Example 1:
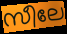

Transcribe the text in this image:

സീലേ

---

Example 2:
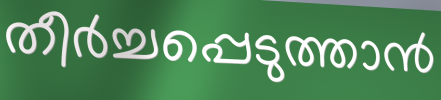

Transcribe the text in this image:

തീർച്ചപ്പെടുത്താൻ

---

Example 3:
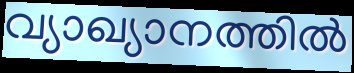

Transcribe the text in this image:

വ്യാഖ്യാനത്തിൽ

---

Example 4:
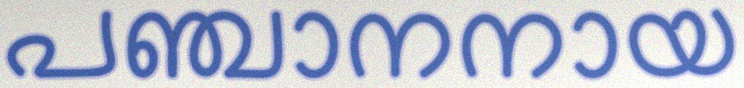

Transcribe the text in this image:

പഞ്ചാനനായ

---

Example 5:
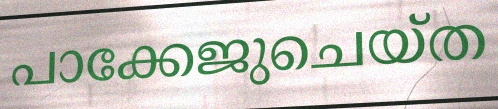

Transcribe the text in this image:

പാക്കേജുചെയ്ത